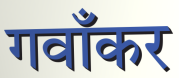
गवाँकर